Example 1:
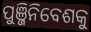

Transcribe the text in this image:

ପୁଞ୍ଜିନିବେଶକୁ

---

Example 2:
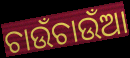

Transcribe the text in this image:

ଚାଉଁଚାଉଁଆ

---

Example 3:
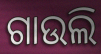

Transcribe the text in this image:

ଗାଉଲି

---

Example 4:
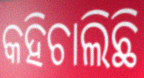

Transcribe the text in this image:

କହିଚାଲିଛି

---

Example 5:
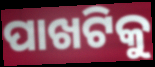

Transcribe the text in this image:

ପାଖଟିକୁ